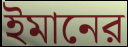
ইমানের